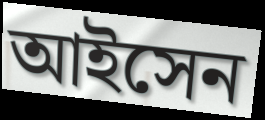
আইসেন